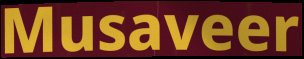
Musaveer